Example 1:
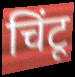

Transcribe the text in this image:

चिंटू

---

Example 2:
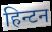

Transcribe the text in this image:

हिन्टन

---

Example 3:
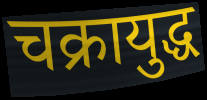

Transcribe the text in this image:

चक्रायुद्ध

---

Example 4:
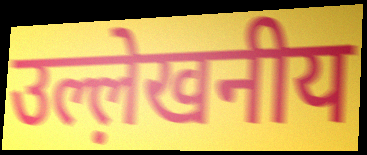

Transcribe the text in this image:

उल्ल़ेखनीय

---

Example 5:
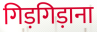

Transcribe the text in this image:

गिड़गिड़ाना